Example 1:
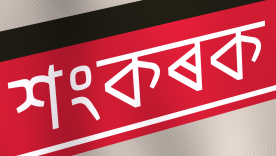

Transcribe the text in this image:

শংকৰক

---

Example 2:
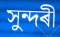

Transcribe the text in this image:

সুন্দৰী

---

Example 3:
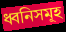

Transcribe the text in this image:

ধ্বনিসমূহ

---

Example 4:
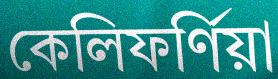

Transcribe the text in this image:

কেলিফৰ্ণিয়া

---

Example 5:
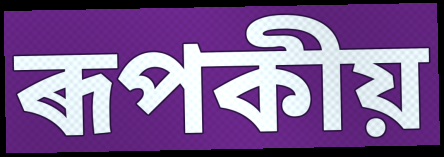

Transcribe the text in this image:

ৰূপকীয়